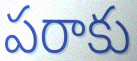
పరాకు